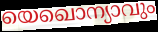
യെഖൊന്യാവും